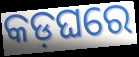
କଡ଼ଘରେ